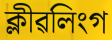
ক্লীৱলিংগ